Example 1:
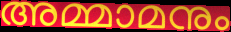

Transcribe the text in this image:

അമ്മാമനും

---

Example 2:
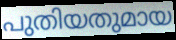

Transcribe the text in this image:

പുതിയതുമായ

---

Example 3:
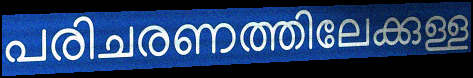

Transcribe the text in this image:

പരിചരണത്തിലേക്കുള്ള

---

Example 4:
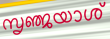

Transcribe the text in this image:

സൃഞ്ജയാശ്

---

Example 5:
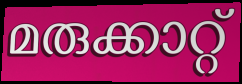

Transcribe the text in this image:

മരുക്കാറ്റ്